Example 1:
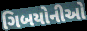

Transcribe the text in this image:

ગિબયોનીઓ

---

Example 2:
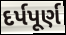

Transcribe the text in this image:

દર્પપૂર્ણ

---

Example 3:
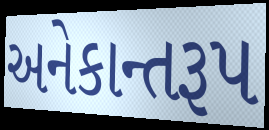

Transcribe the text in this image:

અનેકાન્તરૂપ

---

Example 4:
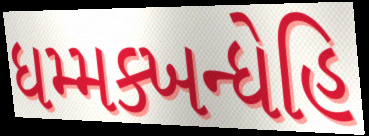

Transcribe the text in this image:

ધમ્મક્ખન્ધેહિ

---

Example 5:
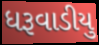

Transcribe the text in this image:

ધરૂવાડીયુ